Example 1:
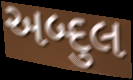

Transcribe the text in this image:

અબ્દુલ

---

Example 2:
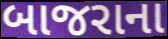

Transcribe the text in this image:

બાજરાના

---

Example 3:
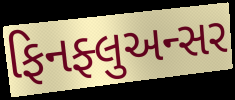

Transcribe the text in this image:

ફિનફ્લુઅન્સર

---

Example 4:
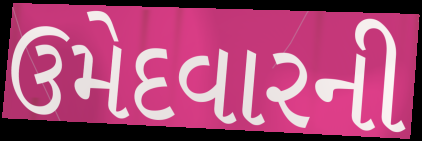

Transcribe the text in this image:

ઉમેદવારની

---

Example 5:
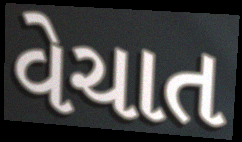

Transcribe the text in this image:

વેચાત